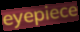
eyepiece